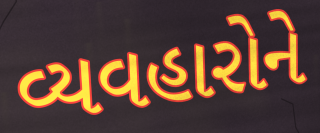
વ્યવહારોને